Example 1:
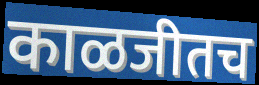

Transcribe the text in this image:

काळजीतच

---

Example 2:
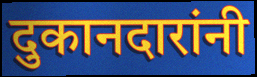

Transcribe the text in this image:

दुकानदारांनी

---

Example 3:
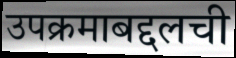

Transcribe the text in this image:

उपक्रमाबद्दलची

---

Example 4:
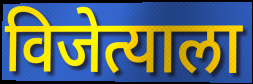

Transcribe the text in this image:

विजेत्याला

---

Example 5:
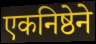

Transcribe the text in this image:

एकनिष्ठेने